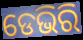
ଡେଭିରି